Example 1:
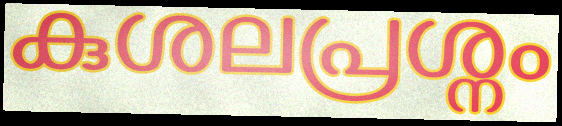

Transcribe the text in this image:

കുശലപ്രശ്നം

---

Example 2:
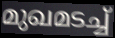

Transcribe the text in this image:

മുഖമടച്ച്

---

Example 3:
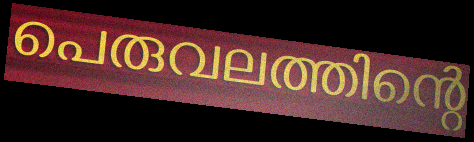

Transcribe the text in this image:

പെരുവലത്തിന്റെ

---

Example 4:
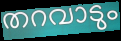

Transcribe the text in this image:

തറവാടും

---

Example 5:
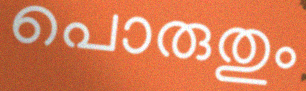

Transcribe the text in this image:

പൊരുതും